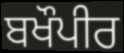
ਬਖੌਪੀਰ